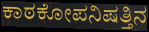
ಕಾಠಕೋಪನಿಷತ್ತಿನ